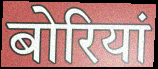
बोरियां